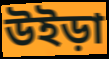
উইড়া